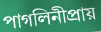
পাগলিনীপ্রায়